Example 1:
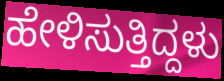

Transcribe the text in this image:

ಹೇಳಿಸುತ್ತಿದ್ದಳು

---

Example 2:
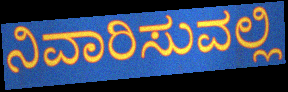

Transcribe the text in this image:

ನಿವಾರಿಸುವಲ್ಲಿ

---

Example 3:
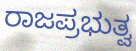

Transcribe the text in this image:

ರಾಜಪ್ರಭುತ್ವ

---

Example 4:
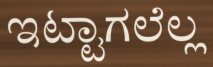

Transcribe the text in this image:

ಇಟ್ಟಾಗಲೆಲ್ಲ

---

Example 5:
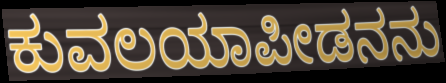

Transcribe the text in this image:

ಕುವಲಯಾಪೀಡನನು